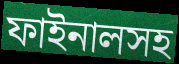
ফাইনালসহ